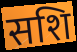
सशि